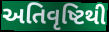
અતિવૃષ્ટિથી